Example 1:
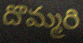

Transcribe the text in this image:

దొమ్మరి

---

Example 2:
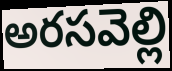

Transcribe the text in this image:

అరసవెల్లి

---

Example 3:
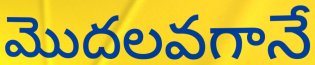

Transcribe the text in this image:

మొదలవగానే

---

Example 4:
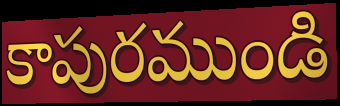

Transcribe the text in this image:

కాపురముండి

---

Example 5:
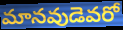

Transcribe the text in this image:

మానవుడెవరో